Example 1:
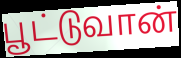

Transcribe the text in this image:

பூட்டுவான்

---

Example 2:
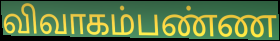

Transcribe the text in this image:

விவாகம்பண்ண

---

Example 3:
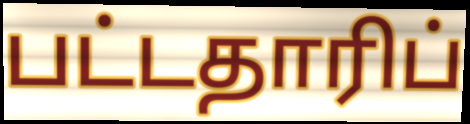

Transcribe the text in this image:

பட்டதாரிப்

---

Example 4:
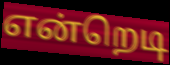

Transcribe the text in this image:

என்றெடி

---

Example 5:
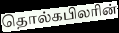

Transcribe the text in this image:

தொல்கபிலரின்